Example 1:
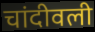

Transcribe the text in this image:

चांदीवली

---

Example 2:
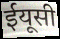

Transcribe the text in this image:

ईयूसी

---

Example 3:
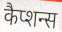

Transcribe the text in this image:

कैप्शन्स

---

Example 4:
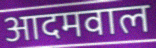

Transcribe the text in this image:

आदमवाल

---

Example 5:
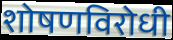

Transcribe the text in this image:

शोषणविरोधी